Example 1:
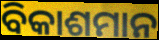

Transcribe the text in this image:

ବିକାଶମାନ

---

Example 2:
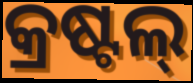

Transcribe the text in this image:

କ୍ରଷ୍ଟଲ୍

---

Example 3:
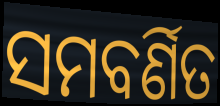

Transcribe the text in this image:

ସମବର୍ଣିତ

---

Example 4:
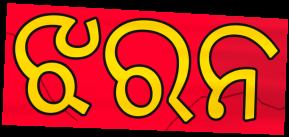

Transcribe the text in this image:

ଝରନ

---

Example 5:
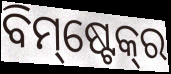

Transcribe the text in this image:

ବିମ୍‌ଷ୍ଟେକ୍‌ର